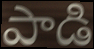
పాడి